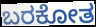
ಬರಕೋತ